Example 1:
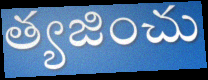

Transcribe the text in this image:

త్యజించు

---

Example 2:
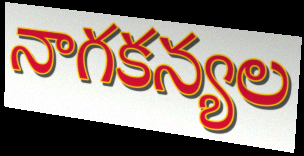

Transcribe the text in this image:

నాగకన్యల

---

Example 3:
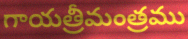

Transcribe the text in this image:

గాయత్రీమంత్రము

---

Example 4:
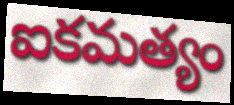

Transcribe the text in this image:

ఐకమత్యం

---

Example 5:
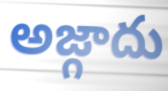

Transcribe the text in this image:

అజ్గాదు